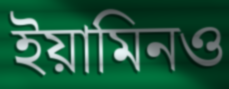
ইয়ামিনও